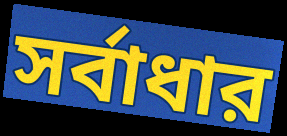
সর্বাধার